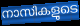
നാസികളുടെ